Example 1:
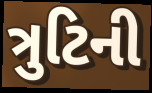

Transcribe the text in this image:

ત્રુટિની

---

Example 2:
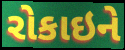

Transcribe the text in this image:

રોકાઇને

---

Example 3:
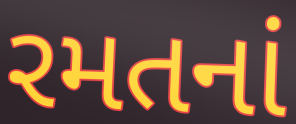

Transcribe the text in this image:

રમતનાં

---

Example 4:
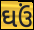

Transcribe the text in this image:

ઘઉં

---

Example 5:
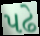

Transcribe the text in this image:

પઢે